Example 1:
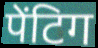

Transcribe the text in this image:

पेंटिग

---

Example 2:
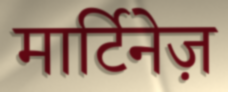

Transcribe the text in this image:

मार्टिनेज़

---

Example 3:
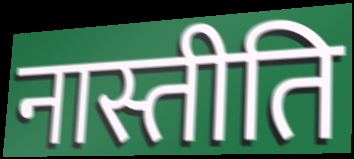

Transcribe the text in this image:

नास्तीति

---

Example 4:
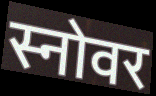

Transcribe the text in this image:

स्नोवर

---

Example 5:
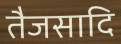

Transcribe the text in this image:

तैजसादि